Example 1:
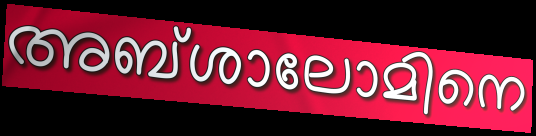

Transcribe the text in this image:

അബ്ശാലോമിനെ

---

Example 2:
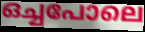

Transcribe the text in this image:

ഒച്ചപോലെ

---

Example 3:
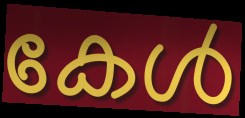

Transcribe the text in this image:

കേൾ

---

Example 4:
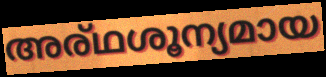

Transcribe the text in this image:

അര്ഥശൂന്യമായ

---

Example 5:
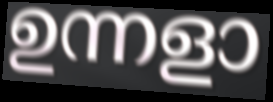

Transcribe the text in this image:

ഉന്നളാ